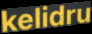
kelidru